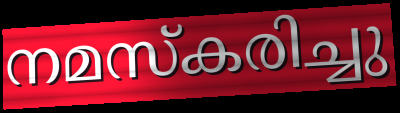
നമസ്കരിച്ചു